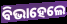
ବିଭାହେଲେ